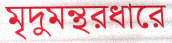
মৃদুমন্থরধারে